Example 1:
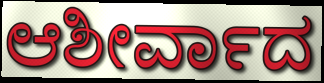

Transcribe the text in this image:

ಆಶೀರ್ವಾದ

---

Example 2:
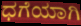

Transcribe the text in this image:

ಧಗೆಯಾಗಿ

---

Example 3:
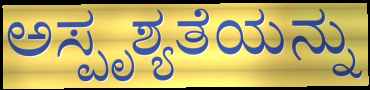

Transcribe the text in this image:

ಅಸ್ಪೃಶ್ಯತೆಯನ್ನು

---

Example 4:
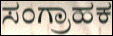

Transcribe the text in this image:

ಸಂಗ್ರಾಹಕ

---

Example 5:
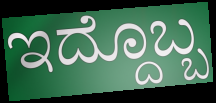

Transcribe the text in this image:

ಇದ್ದೊಬ್ಬ